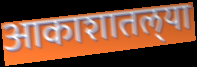
आकाशातल्या